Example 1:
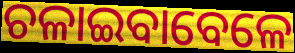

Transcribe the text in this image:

ଚଳାଇବାବେଳେ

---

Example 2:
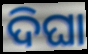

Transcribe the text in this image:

ଦିଘା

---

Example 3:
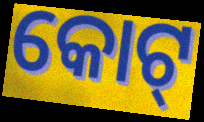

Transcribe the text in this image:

କୋଟ୍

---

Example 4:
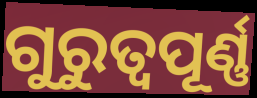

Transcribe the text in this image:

ଗୁରୁତ୍ବପୂର୍ଣ୍ଣ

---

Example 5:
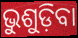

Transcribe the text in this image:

ଭୁଶୁଡ଼ିବା